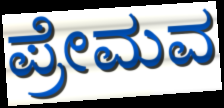
ಪ್ರೇಮವ